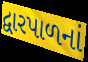
દ્વારપાળનાં